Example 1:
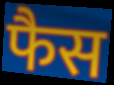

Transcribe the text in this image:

फैस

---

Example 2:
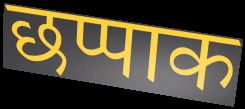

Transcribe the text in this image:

छप्पाक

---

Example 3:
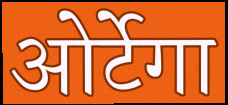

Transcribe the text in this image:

ओर्टेगा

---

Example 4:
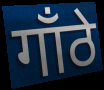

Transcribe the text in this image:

गाँठे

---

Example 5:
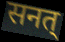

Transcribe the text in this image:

सनत्